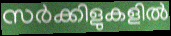
സർക്കിളുകളിൽ